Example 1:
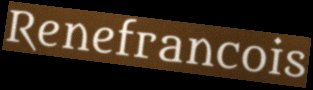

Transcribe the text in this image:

Renefrancois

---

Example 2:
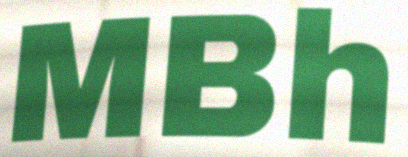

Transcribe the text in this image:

MBh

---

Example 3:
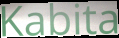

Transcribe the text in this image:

Kabita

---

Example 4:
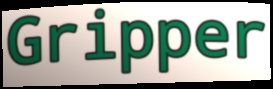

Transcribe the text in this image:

Gripper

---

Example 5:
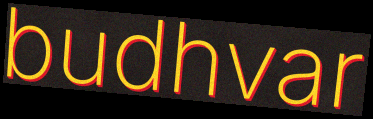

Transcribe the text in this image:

budhvar